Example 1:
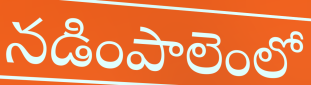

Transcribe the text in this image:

నడింపాలెంలో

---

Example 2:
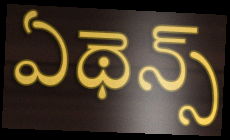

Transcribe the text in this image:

ఏథెన్స్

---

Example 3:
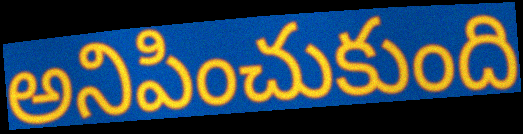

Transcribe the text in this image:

అనిపించుకుంది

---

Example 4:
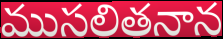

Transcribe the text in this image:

ముసలితనాన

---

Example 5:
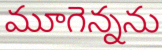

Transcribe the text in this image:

మూగెన్నను